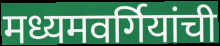
मध्यमवर्गियांची